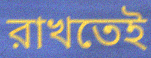
রাখতেই